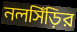
নলসিঁড়ির